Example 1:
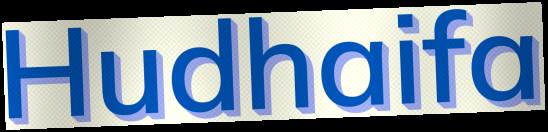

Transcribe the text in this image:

Hudhaifa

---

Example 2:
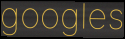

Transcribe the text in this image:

googles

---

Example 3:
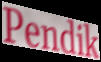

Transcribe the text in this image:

Pendik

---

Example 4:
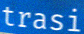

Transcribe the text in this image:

trasi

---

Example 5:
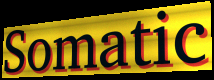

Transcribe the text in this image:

Somatic